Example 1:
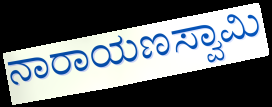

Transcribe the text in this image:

ನಾರಾಯಣಸ್ವಾಮಿ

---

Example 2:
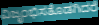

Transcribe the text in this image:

ವಿಜೃಂಭಿಸತೊಡಗಿದರೆ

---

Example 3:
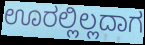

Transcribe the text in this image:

ಊರಲ್ಲಿಲ್ಲದಾಗ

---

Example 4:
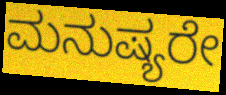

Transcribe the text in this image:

ಮನುಷ್ಯರೇ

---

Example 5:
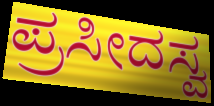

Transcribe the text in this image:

ಪ್ರಸೀದಸ್ವ